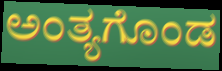
ಅಂತ್ಯಗೊಂಡ